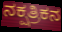
ನಕ್ಷತ್ರಿಕನ